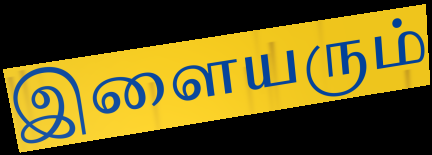
இளையரும்